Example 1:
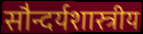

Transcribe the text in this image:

सौन्दर्यशास्त्रीय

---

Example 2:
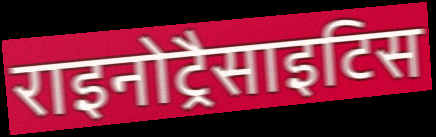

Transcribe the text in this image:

राइनोट्रैसाइटिस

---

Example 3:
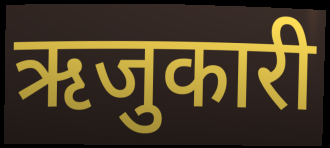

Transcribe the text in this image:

ऋजुकारी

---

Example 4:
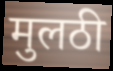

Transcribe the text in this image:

मुलठी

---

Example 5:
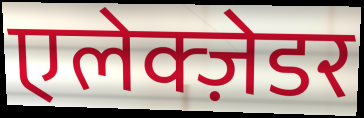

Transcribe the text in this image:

एलेक्ज़ेडर